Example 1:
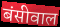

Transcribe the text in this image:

बंसीवाल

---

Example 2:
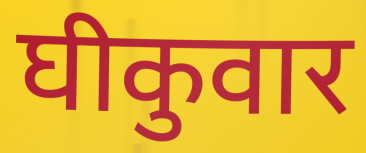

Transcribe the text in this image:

घीकुवार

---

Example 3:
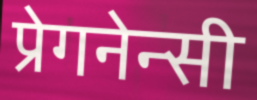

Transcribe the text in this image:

प्रेगनेन्सी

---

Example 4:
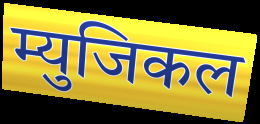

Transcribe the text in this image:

म्युजिकल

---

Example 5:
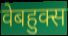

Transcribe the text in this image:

वेबहुक्स